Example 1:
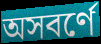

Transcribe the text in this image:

অসবর্ণে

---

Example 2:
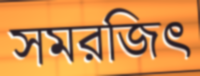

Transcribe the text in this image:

সমরজিৎ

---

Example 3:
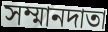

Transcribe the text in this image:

সম্মানদাতা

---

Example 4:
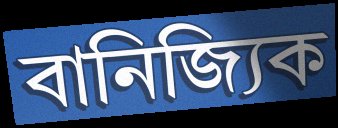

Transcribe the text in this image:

বানিজ্যিক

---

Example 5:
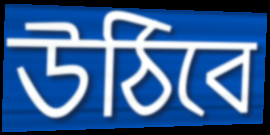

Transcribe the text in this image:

উঠিবে